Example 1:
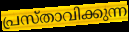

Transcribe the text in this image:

പ്രസ്താവിക്കുന്ന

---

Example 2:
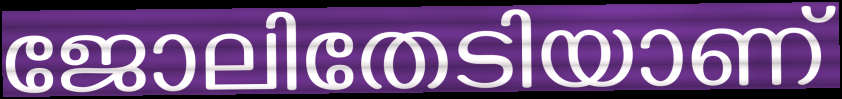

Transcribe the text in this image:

ജോലിതേടിയാണ്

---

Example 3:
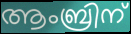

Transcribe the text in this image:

ആംബ്രിന്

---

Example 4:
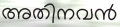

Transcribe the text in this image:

അതിനവൻ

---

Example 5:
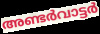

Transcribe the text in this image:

അണ്ടർവാട്ടർ